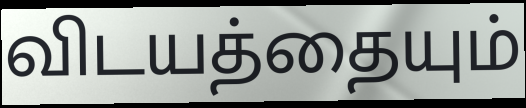
விடயத்தையும்